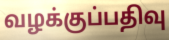
வழக்குப்பதிவு